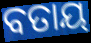
ବତାୟ